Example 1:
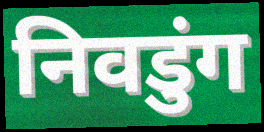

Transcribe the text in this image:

निवडुंग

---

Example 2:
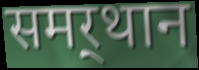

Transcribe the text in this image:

समर्थान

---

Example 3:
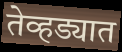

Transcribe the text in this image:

तेव्हड्यात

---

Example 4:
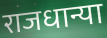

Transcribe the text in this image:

राजधान्या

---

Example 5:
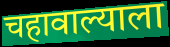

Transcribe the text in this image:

चहावाल्याला